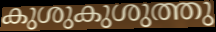
കുശുകുശുത്തു